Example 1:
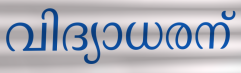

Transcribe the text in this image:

വിദ്യാധരന്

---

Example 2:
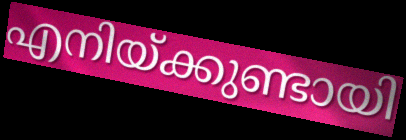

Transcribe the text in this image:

എനിയ്ക്കുണ്ടായി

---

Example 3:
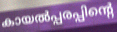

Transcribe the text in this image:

കായൽപ്പരപ്പിന്റെ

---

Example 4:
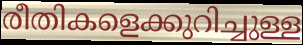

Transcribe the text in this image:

രീതികളെക്കുറിച്ചുള്ള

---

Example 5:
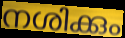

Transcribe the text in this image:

നശിക്കും